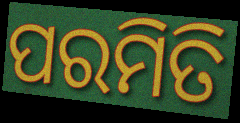
ପରମିତି